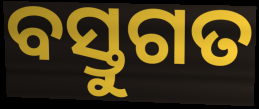
ବସ୍ତୁଗତ